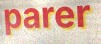
parer